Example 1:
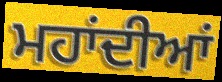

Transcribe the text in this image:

ਮਹਾਂਦੀਆਂ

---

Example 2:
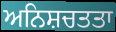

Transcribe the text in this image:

ਅਨਿਸ਼ਚਤਤਾ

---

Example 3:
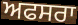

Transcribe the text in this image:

ਅਫਸਰਾ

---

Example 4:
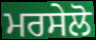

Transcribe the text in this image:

ਮਰਸੇਲੋ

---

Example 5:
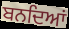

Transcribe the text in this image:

ਬਨਦਿਆਂ